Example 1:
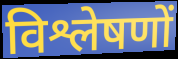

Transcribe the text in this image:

विश्लेषणों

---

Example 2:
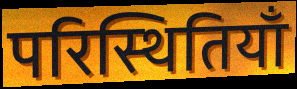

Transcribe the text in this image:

परिस्थितियाँ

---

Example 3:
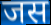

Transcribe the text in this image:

जस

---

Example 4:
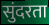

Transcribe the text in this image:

सुंदरता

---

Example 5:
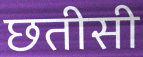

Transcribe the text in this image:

छतीसी